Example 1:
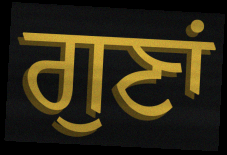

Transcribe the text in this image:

ਗੁਣਾਂ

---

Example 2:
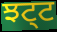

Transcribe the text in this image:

ਝਟ੍ਟ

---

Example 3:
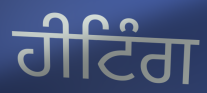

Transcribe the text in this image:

ਹੀਟਿੰਗ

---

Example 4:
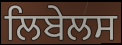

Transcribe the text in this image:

ਲਿਬੇਲਸ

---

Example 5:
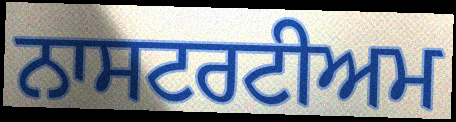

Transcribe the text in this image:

ਨਾਸਟਰਟੀਅਮ